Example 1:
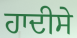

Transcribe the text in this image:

ਹਾਦੀਸੇ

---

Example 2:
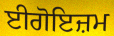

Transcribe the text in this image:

ਈਗੋਇਜ਼ਮ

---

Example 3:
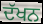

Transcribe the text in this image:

ਦੱਖਨ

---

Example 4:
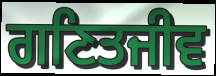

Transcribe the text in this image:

ਗਣਿਤਜੀਵ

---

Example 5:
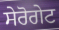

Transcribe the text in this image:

ਸੇਰੋਗੇਟ